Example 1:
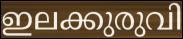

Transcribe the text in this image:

ഇലക്കുരുവി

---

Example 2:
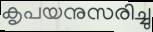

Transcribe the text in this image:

കൃപയനുസരിച്ചു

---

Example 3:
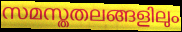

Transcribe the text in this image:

സമസ്തതലങ്ങളിലും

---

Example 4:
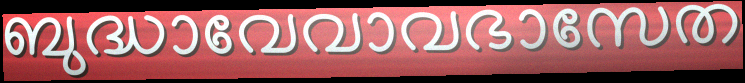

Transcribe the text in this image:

ബുദ്ധാവേവാവഭാസേത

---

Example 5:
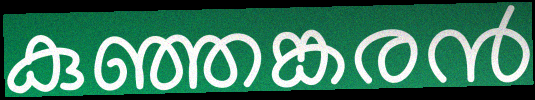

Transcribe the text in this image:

കുഞ്ഞങ്കരൻ